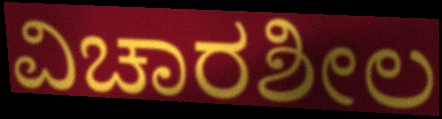
ವಿಚಾರಶೀಲ